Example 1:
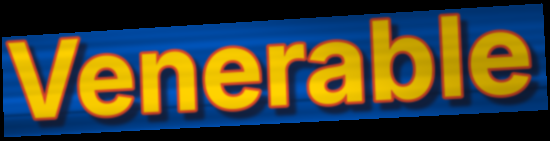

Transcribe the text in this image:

Venerable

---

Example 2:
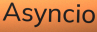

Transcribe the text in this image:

Asyncio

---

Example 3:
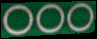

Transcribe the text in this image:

OOO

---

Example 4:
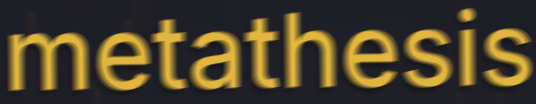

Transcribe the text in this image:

metathesis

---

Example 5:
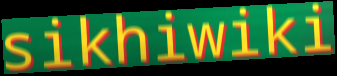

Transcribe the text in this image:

sikhiwiki